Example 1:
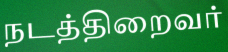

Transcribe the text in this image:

நடத்திறைவர்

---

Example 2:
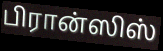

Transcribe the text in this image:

பிரான்ஸிஸ்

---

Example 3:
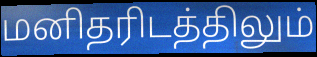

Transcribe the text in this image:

மனிதரிடத்திலும்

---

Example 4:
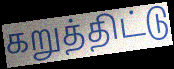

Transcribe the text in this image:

கறுத்திட்டு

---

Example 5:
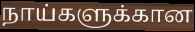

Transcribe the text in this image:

நாய்களுக்கான